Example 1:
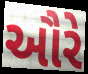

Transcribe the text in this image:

ઔરે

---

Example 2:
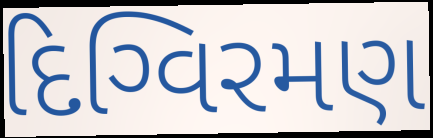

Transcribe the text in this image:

દિગ્વિરમણ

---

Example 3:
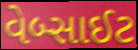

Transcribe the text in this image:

વેબ્સાઈટ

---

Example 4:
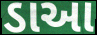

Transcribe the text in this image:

ડાઆ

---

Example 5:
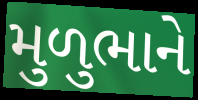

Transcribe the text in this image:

મુળુભાને